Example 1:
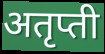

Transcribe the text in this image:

अतृप्ती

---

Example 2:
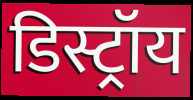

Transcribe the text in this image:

डिस्ट्रॉय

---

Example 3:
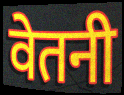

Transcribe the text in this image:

वेतनी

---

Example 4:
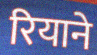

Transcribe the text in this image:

रियाने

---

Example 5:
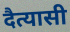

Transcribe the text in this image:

दैत्यासी